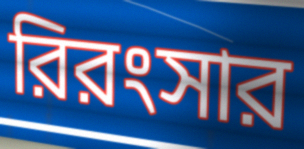
রিরংসার